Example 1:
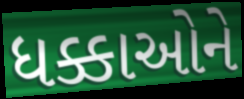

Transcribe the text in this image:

ધક્કાઓને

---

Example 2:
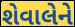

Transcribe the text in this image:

શેવાલેને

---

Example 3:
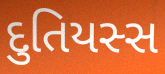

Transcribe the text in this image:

દુતિયસ્સ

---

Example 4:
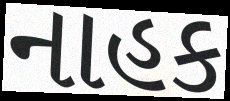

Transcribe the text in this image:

નાહક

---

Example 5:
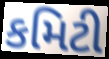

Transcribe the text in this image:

કમિટી